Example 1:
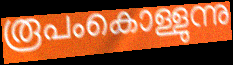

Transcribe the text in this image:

രൂപംകൊള്ളുന്നു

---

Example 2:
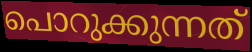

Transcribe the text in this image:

പൊറുക്കുന്നത്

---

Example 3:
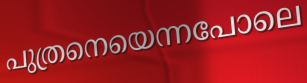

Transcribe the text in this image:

പുത്രനെയെന്നപോലെ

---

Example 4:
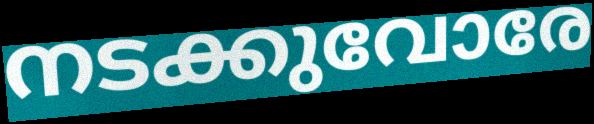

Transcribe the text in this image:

നടക്കുവോരേ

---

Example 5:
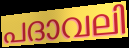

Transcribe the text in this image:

പദാവലി